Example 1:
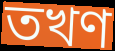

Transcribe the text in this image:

তখণ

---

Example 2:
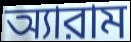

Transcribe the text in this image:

অ্যারাম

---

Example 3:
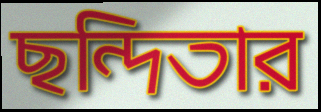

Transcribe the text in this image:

ছন্দিতার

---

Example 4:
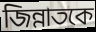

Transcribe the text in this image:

জিন্নাতকে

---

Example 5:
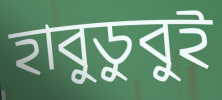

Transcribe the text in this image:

হাবুডুবুই